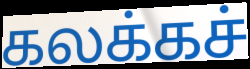
கலக்கச்